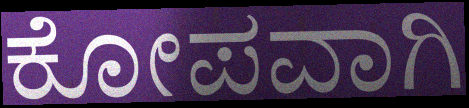
ಕೋಪವಾಗಿ